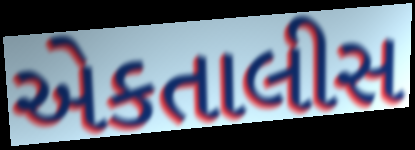
એકતાલીસ